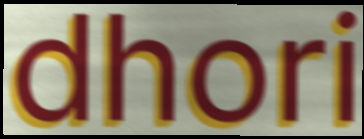
dhori